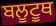
ਬਲੂਟੂਥ